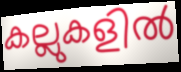
കല്ലുകളിൽ